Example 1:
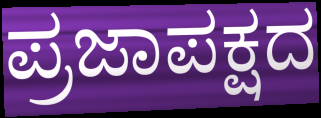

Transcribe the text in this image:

ಪ್ರಜಾಪಕ್ಷದ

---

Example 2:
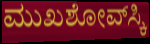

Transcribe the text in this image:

ಮುಖಶೋವ್‌ಸ್ಕಿ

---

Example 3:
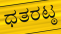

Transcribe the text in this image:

ಧತರಟ್ಠ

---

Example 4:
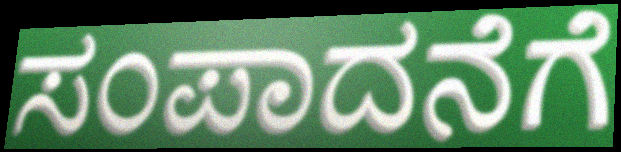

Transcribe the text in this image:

ಸಂಪಾದನೆಗೆ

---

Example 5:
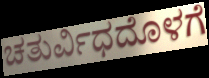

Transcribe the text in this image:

ಚತುರ್ವಿಧದೊಳಗೆ